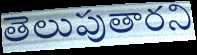
తెలుపుతారని